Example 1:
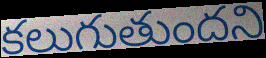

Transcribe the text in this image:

కలుగుతుందని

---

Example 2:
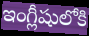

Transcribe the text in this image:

ఇంగ్లీషులోకి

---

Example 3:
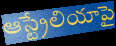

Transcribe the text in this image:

ఆస్ట్రేలియాపై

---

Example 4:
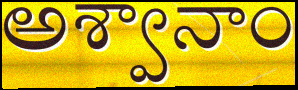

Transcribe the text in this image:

అశ్వానాం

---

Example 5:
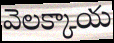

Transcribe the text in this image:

వెలక్కాయ